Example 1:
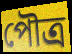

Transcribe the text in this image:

পৌত্র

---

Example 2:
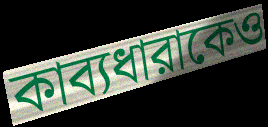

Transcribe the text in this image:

কাব্যধারাকেও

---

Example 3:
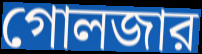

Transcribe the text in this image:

গোলজার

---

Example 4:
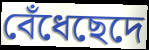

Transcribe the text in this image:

বেঁধেছেদে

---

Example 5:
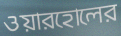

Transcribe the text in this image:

ওয়ারহোলের